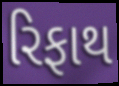
રિફાથ